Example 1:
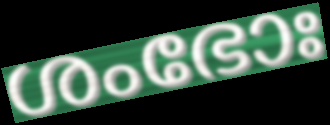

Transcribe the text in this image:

ശംഭോഃ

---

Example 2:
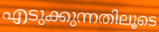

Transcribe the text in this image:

എടുക്കുന്നതിലൂടെ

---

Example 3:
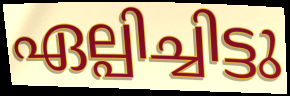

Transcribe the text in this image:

ഏല്പിച്ചിട്ടു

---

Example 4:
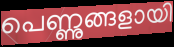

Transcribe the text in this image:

പെണ്ണുങ്ങളായി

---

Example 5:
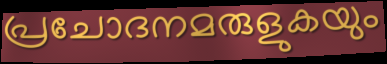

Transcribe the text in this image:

പ്രചോദനമരുളുകയും